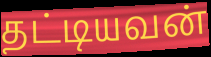
தட்டியவன்